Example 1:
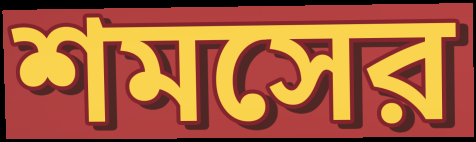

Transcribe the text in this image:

শমসের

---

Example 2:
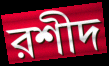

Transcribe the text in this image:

রশীদ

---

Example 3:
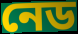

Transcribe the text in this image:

নেড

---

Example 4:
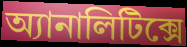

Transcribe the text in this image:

অ্যানালিটিক্সে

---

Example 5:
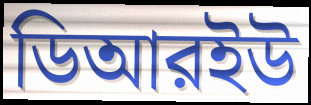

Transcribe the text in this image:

ডিআরইউ